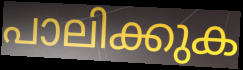
പാലിക്കുക